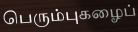
பெரும்புகழைப்